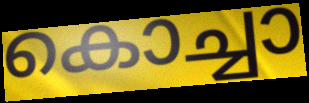
കൊച്ചാ